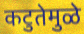
कटुतेमुळे